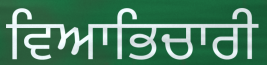
ਵਿਆਭਿਚਾਰੀ